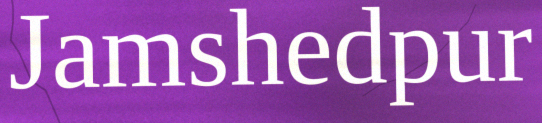
Jamshedpur